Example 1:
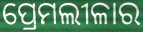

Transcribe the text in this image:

ପ୍ରେମଲୀଳାର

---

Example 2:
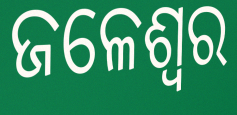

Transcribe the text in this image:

ଜଳେଶ୍ବର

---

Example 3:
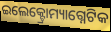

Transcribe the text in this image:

ଇଲେକ୍ଟ୍ରୋମ୍ୟାଗ୍ନେଟିକ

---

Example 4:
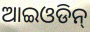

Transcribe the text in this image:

ଆଇଓଡିନ୍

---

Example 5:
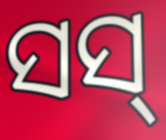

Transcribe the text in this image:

ସସ୍